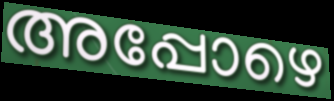
അപ്പോഴെ